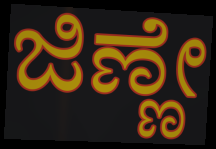
ಜಿಣ್ಣೇ